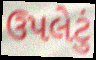
ઉપલેટું